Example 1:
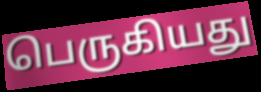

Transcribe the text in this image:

பெருகியது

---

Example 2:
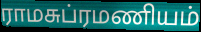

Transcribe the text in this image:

ராமசுப்ரமணியம்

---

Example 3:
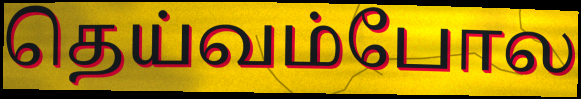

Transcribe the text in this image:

தெய்வம்போல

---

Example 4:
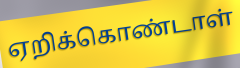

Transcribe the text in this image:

ஏறிக்கொண்டாள்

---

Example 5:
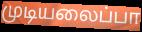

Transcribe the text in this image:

முடியலைப்பா